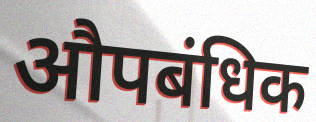
औपबंधिक